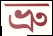
ভ্রু